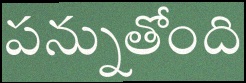
పన్నుతోంది